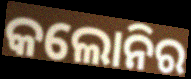
କଲୋନିର